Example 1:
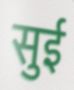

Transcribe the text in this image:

सुई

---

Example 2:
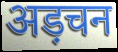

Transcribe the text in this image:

अड़चन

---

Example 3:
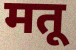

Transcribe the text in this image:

मतू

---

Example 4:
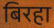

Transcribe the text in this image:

बिरहा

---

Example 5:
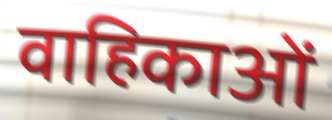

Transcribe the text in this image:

वाहिकाओं